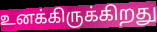
உனக்கிருக்கிறது